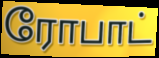
ரோபாட்